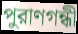
পুরাণগন্ধী